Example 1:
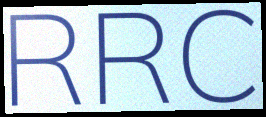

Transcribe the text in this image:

RRC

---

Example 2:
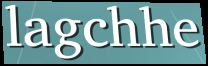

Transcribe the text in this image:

lagchhe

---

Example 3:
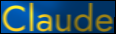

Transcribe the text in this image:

Claude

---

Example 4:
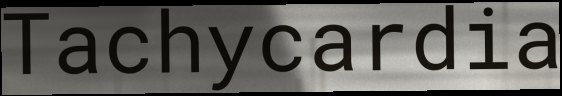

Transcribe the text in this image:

Tachycardia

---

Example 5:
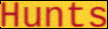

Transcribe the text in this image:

Hunts